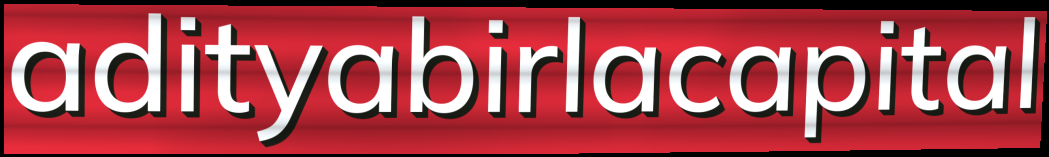
adityabirlacapital